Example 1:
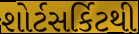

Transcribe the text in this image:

શોર્ટસર્કિટથી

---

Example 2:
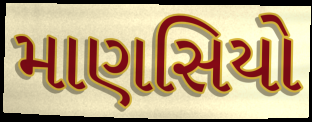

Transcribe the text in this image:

માણસિયો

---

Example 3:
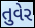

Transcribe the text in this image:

તુવેર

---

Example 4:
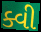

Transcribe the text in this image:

ક્વી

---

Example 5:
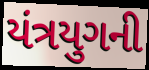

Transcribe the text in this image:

યંત્રયુગની